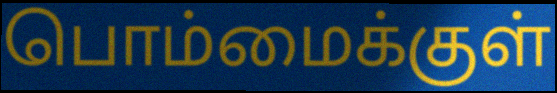
பொம்மைக்குள்